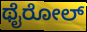
ಥೈರೋಲ್